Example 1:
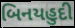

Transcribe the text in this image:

બિનયહુદી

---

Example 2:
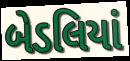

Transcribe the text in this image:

બેડલિયાં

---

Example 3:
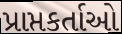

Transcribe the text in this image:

પ્રાપ્તકર્તાઓ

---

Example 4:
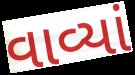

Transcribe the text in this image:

વાવ્યાં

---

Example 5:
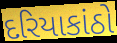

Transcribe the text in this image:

દરિયાકાંઠો